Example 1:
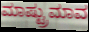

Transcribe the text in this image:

ಮಾಷ್ಟ್ರುಮಾವ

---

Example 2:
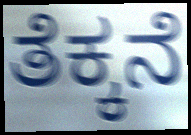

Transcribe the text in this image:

ತೆಕ್ಕನೆ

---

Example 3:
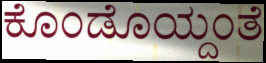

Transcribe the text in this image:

ಕೊಂಡೊಯ್ದಂತೆ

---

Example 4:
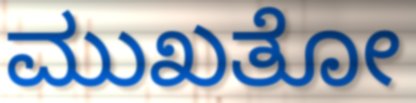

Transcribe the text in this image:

ಮುಖತೋ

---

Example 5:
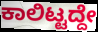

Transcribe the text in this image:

ಕಾಲಿಟ್ಟದ್ದೇ